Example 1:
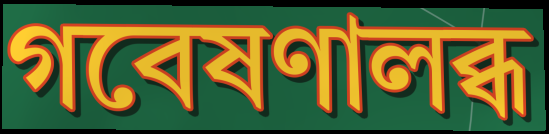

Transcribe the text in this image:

গবেষণালব্ধ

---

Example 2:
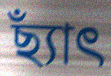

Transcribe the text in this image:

ছ্যাঁৎ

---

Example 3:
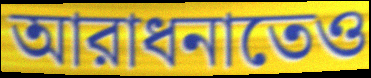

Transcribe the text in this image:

আরাধনাতেও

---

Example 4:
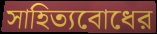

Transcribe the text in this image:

সাহিত্যবোধের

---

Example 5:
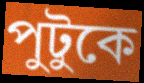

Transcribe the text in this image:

পুটুকে